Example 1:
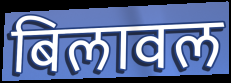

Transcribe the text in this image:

बिलावल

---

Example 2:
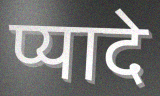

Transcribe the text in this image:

प्यादे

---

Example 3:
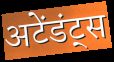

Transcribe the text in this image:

अटेंडंट्स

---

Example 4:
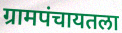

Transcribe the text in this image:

ग्रामपंचायतला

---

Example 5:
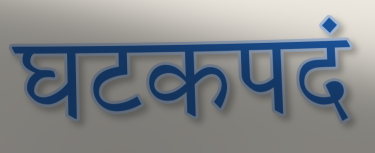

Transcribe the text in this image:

घटकपदं